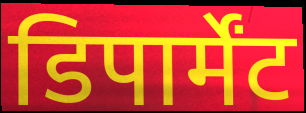
डिपार्मेंट